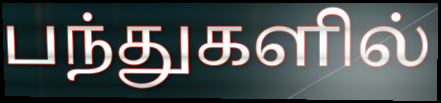
பந்துகளில்